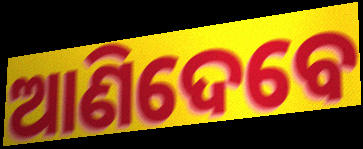
ଆଣିଦେବେ